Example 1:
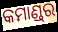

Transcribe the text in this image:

କମାଣ୍ଡ୍‌ର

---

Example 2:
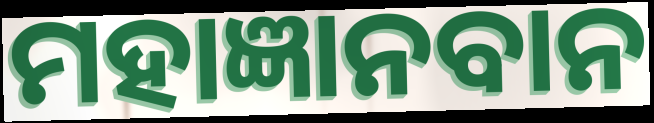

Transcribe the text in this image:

ମହାଜ୍ଞାନବାନ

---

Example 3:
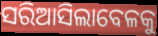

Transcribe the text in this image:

ସରିଆସିଲାବେଳକୁ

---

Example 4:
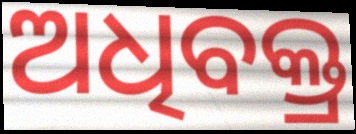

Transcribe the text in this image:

ଅଧିବକ୍ତ୍ର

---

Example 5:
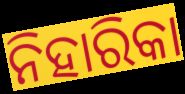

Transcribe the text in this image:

ନିହାରିକା